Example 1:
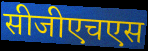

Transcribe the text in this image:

सीजीएचएस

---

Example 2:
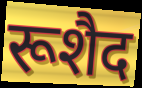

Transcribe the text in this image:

रूशैद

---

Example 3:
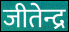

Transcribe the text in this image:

जीतेन्द्र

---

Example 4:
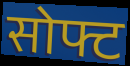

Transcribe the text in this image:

सोफ्ट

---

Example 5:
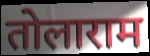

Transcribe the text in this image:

तोलाराम